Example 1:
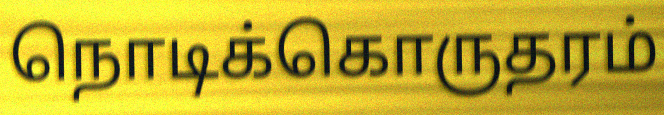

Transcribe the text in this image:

நொடிக்கொருதரம்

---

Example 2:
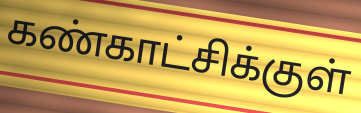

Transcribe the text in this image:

கண்காட்சிக்குள்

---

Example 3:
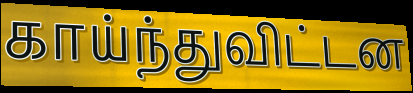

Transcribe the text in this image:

காய்ந்துவிட்டன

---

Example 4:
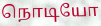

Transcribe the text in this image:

நொடியோ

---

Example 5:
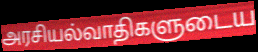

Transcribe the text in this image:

அரசியல்வாதிகளுடைய